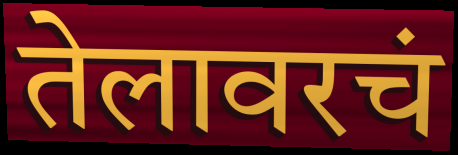
तेलावरचं